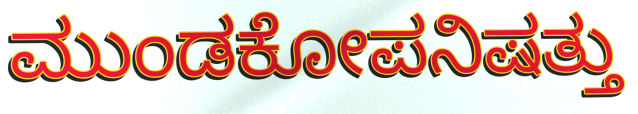
ಮುಂಡಕೋಪನಿಷತ್ತು